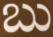
బు